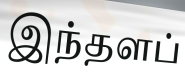
இந்தளப்